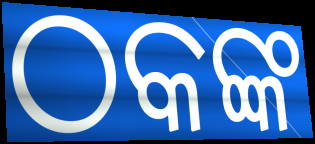
ଠକଙ୍କ